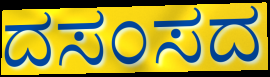
ದಸಂಸದ